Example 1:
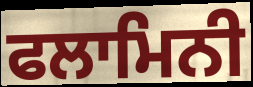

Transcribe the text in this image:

ਫਲਾਮਿਨੀ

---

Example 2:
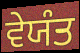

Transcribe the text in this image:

ਵੇਯੰਤ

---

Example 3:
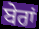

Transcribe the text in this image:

ਬੇਰਾਂ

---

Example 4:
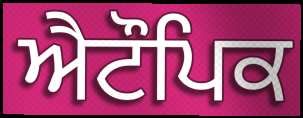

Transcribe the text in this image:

ਐਟੌਪਿਕ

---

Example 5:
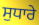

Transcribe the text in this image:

ਸੁਧਾਰੇ